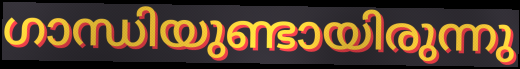
ഗാന്ധിയുണ്ടായിരുന്നു